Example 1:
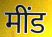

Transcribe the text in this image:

मींड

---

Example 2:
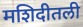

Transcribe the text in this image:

मशिदीतली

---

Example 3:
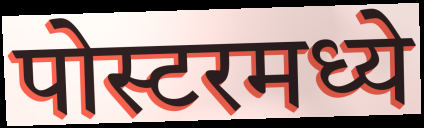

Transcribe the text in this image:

पोस्टरमध्ये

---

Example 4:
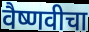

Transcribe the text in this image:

वैष्णवीचा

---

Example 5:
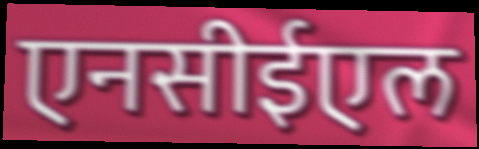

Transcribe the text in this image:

एनसीईएल